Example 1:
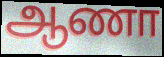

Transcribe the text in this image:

ஆணா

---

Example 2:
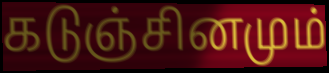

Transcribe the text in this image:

கடுஞ்சினமும்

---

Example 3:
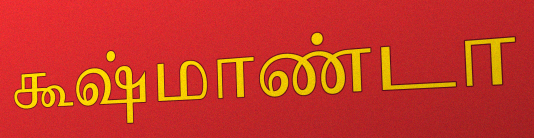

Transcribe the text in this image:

கூஷ்மாண்டா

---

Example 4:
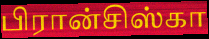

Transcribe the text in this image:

பிரான்சிஸ்கா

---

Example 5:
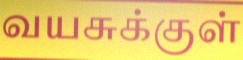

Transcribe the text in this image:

வயசுக்குள்